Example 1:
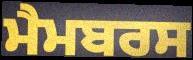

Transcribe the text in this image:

ਮੈਮਬਰਸ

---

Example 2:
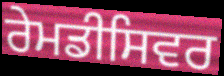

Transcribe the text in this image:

ਰੇਮਡੀਸਿਵਰ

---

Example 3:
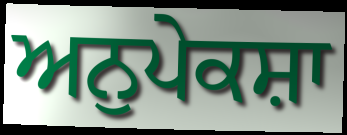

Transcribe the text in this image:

ਅਨੁਪੇਕਸ਼ਾ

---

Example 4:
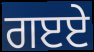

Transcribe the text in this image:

ਗੲਏ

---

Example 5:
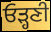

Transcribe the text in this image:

ਓੜ੍ਹਣੀ